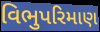
વિભુપરિમાણ